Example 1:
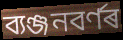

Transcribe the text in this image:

ব্যঞ্জনবৰ্ণৰ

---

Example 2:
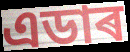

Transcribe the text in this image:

এডাৰ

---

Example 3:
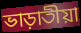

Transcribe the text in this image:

ভাড়াতীয়া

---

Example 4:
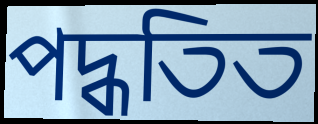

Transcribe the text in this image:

পদ্ধতিত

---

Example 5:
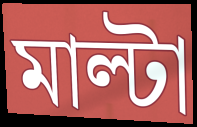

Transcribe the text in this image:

মাল্টা